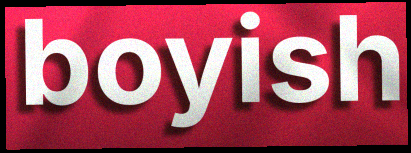
boyish